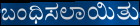
ಬಂಧಿಸಲಾಯಿತು